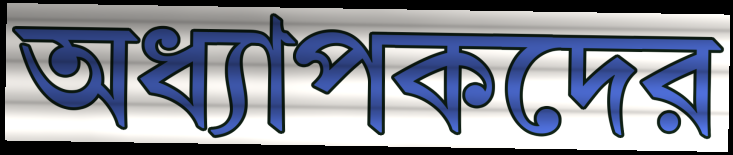
অধ্যাপকদের